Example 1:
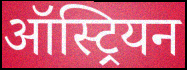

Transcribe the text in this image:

ऑस्ट्रियन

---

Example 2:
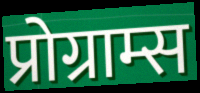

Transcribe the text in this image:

प्रोग्राम्‍स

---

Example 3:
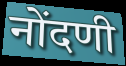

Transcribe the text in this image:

नोंदणी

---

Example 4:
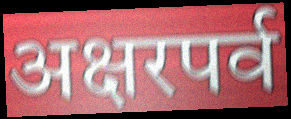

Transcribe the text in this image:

अक्षरपर्व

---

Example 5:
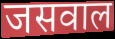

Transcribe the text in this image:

जसवाल